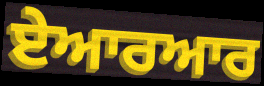
ਏਆਰਆਰ